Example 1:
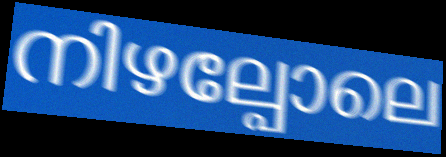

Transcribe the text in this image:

നിഴല്പോലെ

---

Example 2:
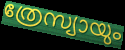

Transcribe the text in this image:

ത്രേസ്യായും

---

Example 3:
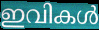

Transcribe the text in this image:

ഇവികൾ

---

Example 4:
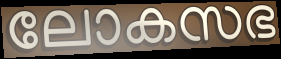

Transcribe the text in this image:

ലോകസഭ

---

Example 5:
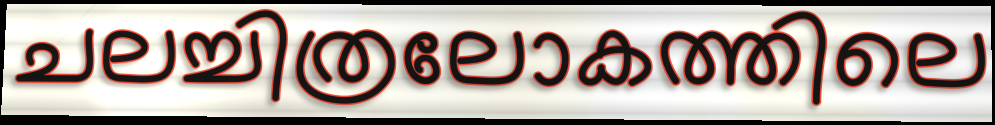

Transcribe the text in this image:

ചലച്ചിത്രലോകത്തിലെ